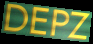
DEPZ